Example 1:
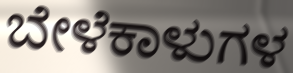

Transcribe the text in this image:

ಬೇಳೆಕಾಳುಗಳ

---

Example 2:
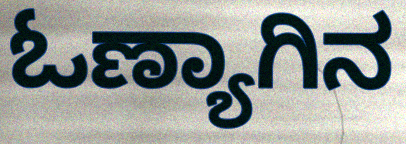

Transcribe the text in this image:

ಓಣ್ಯಾಗಿನ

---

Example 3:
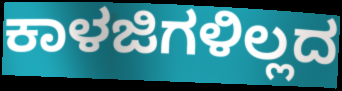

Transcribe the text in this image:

ಕಾಳಜಿಗಳಿಲ್ಲದ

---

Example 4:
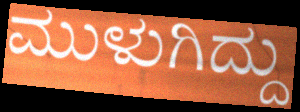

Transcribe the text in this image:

ಮುಳುಗಿದ್ದು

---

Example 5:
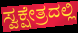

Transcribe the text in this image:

ಸ್ವಕ್ಷೇತ್ರದಲ್ಲಿ